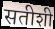
सतीशी